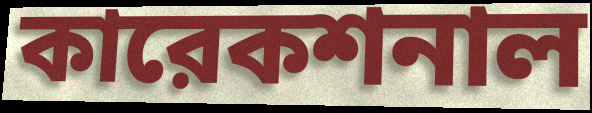
কারেকশনাল